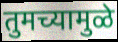
तुमच्यामुळे